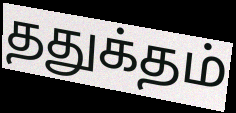
ததுக்தம்